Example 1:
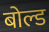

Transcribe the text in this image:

बोल्ड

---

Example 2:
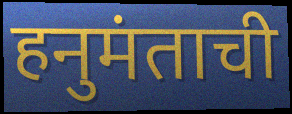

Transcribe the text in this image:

हनुमंताची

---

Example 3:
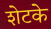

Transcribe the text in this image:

शेटके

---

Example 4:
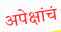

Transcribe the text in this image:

अपेक्षांचं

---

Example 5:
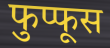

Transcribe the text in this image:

फुप्फूस